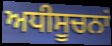
ਅਧੀਸੂਚਨਾਂ